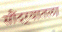
सौंदर्यातला